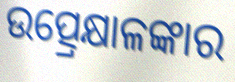
ଉତ୍ପ୍ରେକ୍ଷାଳଙ୍କାର